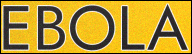
EBOLA